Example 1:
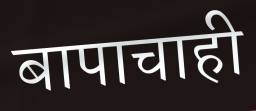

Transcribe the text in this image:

बापाचाही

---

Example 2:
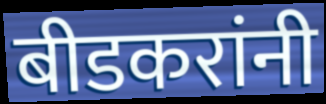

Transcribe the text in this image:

बीडकरांनी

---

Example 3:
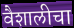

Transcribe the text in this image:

वैशालीचा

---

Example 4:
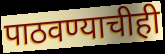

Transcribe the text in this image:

पाठवण्याचीही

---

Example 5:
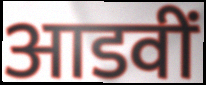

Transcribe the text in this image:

आडवीं